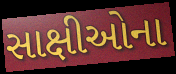
સાક્ષીઓના